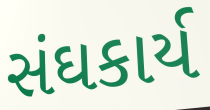
સંઘકાર્ય